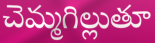
చెమ్మగిల్లుతూ